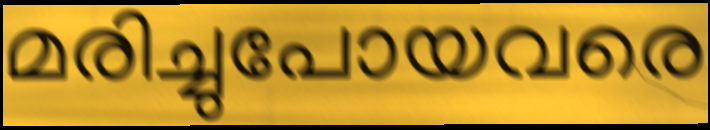
മരിച്ചുപോയവരെ